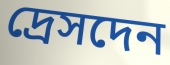
দ্রেসদেন